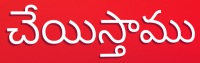
చేయిస్తాము